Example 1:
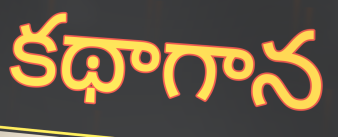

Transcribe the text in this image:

కథాగాన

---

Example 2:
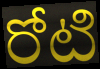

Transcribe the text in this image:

రోటి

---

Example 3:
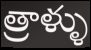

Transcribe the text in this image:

త్రాళ్ళు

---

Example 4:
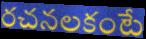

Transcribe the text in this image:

రచనలకంటే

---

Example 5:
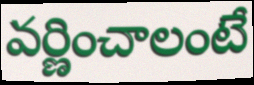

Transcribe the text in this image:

వర్ణించాలంటే